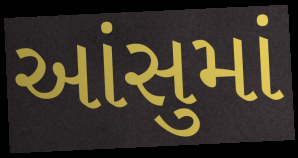
આંસુમાં